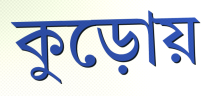
কুড়োয়